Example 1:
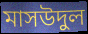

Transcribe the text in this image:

মাসউদুল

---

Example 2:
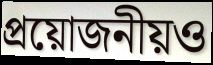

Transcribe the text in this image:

প্রয়োজনীয়ও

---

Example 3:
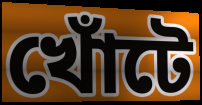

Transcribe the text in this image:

খোঁটে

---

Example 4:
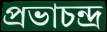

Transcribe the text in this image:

প্রভাচন্দ্র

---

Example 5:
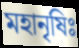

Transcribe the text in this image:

মহানৃষিঃ